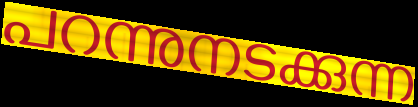
പറന്നുനടക്കുന്ന